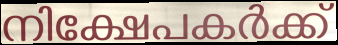
നിക്ഷേപകർക്ക്